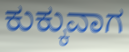
ಕುಕ್ಕುವಾಗ